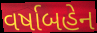
વર્ષાબહેન